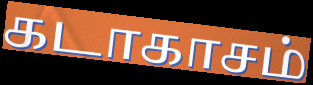
கடாகாசம்